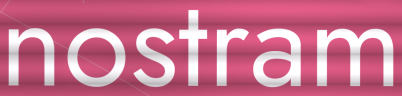
nostram